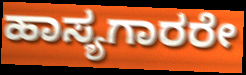
ಹಾಸ್ಯಗಾರರೇ